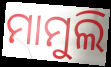
ମାମୁଲି